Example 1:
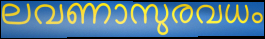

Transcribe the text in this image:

ലവണാസുരവധം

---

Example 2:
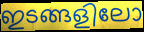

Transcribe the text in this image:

ഇടങ്ങളിലോ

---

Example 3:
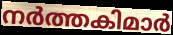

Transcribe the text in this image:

നർത്തകിമാർ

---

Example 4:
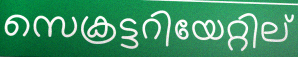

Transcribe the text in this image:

സെക്രട്ടറിയേറ്റില്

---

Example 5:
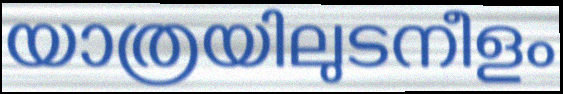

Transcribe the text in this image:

യാത്രയിലുടനീളം